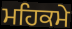
ਮਹਿਕਮੇ